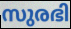
സുരഭി